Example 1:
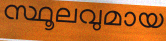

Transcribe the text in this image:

സ്ഥൂലവുമായ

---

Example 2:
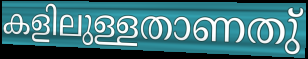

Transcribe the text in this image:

കളിലുള്ളതാണതു്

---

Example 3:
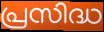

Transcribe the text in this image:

പ്രസിദ്ധ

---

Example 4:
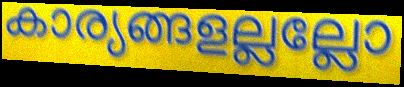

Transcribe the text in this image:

കാര്യങ്ങളല്ലല്ലോ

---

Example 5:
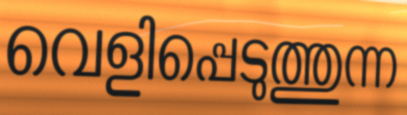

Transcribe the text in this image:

വെളിപ്പെടുത്തുന്ന